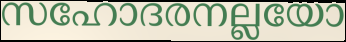
സഹോദരനല്ലയോ